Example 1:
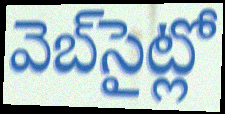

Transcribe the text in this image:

వెబ్‌సైట్లో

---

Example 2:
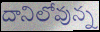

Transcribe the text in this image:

దానిలోవున్న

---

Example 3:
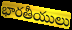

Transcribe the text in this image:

భారతీయులు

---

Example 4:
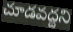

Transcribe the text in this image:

చూడవద్దని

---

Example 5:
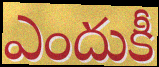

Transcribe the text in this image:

ఎందుకీ